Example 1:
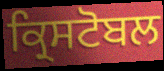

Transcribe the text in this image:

ਕ੍ਰਿਸਟੋਬਲ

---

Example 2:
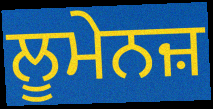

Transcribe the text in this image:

ਲੂਮੇਨਜ਼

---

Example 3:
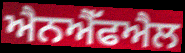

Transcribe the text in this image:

ਐਨਐੱਫਐਲ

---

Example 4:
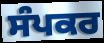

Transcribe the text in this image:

ਸੰਪਕਰ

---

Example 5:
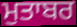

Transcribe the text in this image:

ਮੁਤਾਬਰ